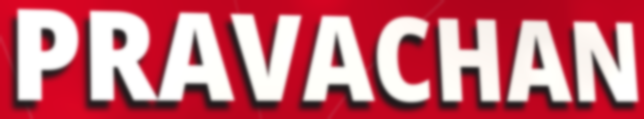
PRAVACHAN